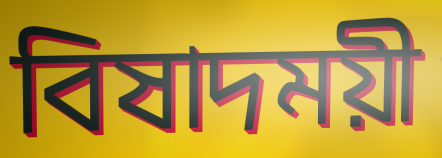
বিষাদময়ী